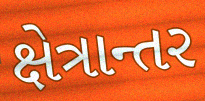
ક્ષેત્રાન્તર